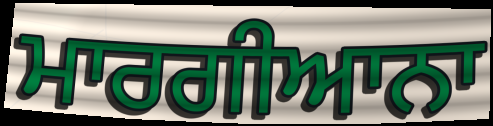
ਮਾਰਗੀਆਨਾ